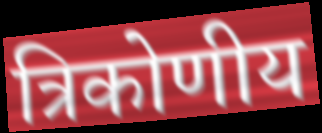
त्रिकोणीय